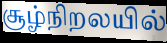
சூழ்நிறலயில்